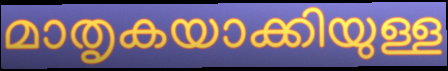
മാതൃകയാക്കിയുള്ള